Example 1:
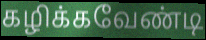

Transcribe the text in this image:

கழிக்கவேண்டி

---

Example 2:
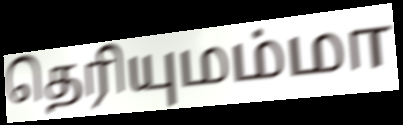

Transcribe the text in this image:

தெரியுமம்மா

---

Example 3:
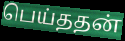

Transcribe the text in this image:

பெய்ததன்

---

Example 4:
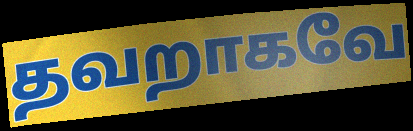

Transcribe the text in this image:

தவறாகவே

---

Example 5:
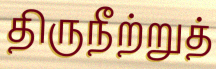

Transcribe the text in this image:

திருநீற்றுத்